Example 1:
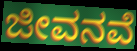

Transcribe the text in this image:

ಜೀವನವೆ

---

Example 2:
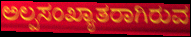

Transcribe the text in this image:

ಅಲ್ಪಸಂಖ್ಯಾತರಾಗಿರುವ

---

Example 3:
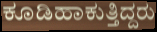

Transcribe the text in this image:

ಕೂಡಿಹಾಕುತ್ತಿದ್ದರು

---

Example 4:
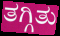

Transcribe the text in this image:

ತಗ್ಗಿತು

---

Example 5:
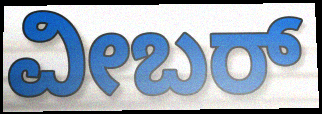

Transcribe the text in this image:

ವೀಬರ್